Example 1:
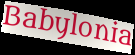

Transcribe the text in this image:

Babylonia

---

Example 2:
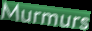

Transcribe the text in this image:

Murmurs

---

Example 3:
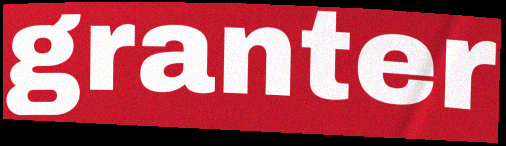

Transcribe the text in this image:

granter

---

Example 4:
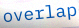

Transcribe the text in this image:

overlap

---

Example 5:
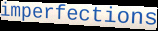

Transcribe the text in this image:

imperfections